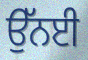
ਉੱਨਈ